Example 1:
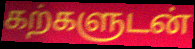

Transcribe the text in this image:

கற்களுடன்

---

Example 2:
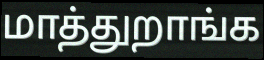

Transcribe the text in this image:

மாத்துறாங்க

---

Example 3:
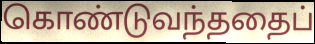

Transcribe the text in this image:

கொண்டுவந்ததைப்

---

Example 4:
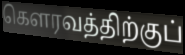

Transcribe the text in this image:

கௌரவத்திற்குப்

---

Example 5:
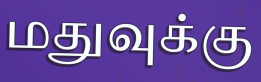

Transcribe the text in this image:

மதுவுக்கு